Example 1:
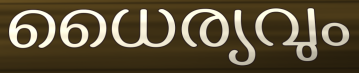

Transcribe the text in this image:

ധൈര്യവും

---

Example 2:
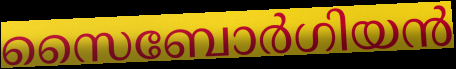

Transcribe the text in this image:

സൈബോർഗിയൻ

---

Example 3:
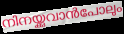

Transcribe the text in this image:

നിനയ്ക്കുവാൻപോലും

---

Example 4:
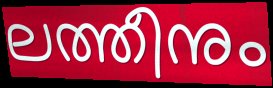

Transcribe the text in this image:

ലത്തീനും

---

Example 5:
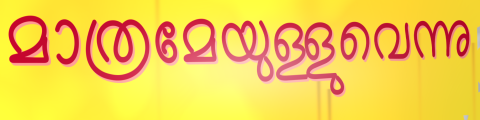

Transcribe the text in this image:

മാത്രമേയുള്ളുവെന്നു